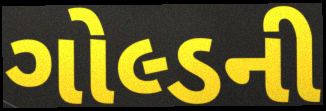
ગોલ્ડની